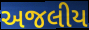
અજલીય